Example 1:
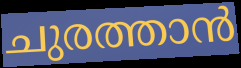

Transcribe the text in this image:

ചുരത്താൻ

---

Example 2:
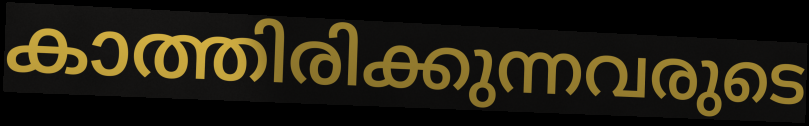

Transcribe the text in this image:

കാത്തിരിക്കുന്നവരുടെ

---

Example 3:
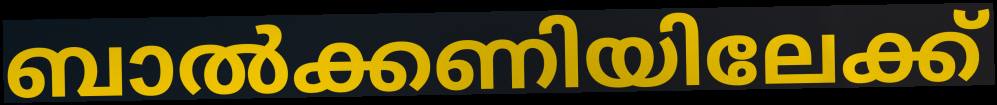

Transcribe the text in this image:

ബാൽക്കണിയിലേക്ക്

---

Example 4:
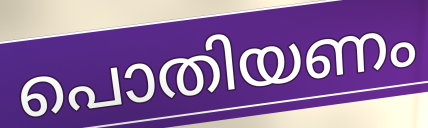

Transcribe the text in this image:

പൊതിയണം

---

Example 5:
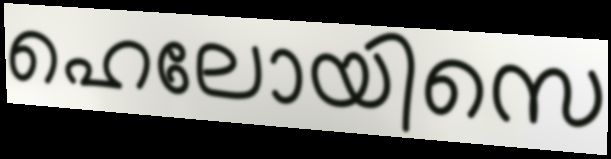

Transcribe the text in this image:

ഹെലോയിസെ